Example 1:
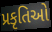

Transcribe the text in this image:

પ્રકૃતિઓ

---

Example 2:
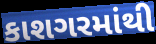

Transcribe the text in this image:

કાશગરમાંથી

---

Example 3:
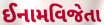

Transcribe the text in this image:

ઈનામવિજેતા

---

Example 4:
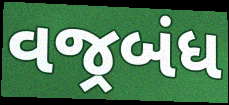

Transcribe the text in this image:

વજ્રબંધ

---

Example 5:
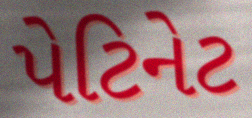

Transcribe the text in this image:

પેટિનેટ